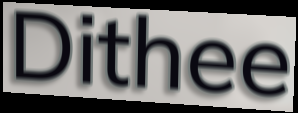
Dithee